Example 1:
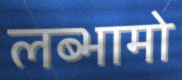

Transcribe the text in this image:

लब्भामो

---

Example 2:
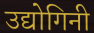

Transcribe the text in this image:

उद्योगिनी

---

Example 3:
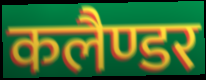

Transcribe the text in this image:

कलैण्डर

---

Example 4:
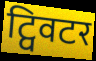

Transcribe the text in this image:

ट्विवटर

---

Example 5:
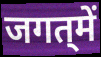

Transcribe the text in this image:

जगत्‌में